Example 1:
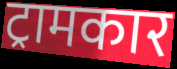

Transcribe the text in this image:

ट्रामकार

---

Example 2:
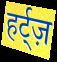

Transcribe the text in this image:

हर्ट्ज़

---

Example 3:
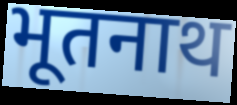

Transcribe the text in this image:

भूतनाथ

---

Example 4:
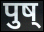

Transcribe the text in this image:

पुष्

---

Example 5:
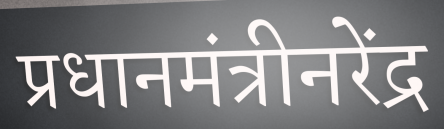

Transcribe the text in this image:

प्रधानमंत्रीनरेंद्र